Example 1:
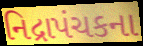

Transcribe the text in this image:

નિદ્રાપંચકના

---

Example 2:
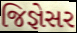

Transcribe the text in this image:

જિજ્ઞેસર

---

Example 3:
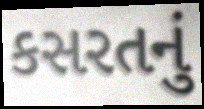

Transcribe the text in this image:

કસરતનું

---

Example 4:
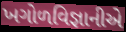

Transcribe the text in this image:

ખગોળવિજ્ઞાનીએ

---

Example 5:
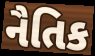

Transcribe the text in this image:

નૈતિક